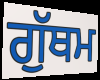
ਗੁੱਥਮ